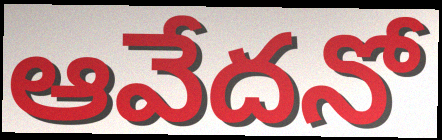
ఆవేదనో